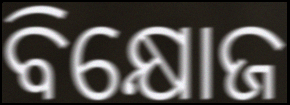
ବିକ୍ଷୋଜ